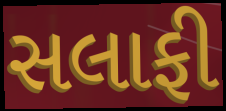
સલાફી